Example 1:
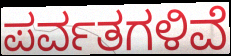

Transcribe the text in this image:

ಪರ್ವತಗಳಿವೆ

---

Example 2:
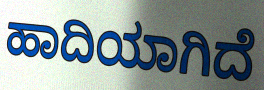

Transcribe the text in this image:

ಹಾದಿಯಾಗಿದೆ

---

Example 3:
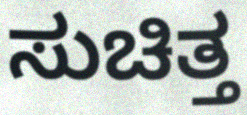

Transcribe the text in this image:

ಸುಚಿತ್ತ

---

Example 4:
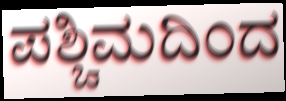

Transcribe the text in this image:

ಪಶ್ಚಿಮದಿಂದ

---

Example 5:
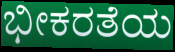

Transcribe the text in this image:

ಭೀಕರತೆಯ